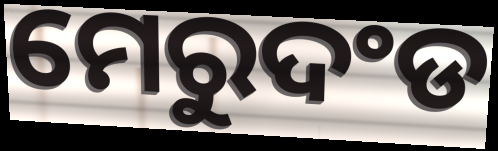
ମେରୁଦଂଡ